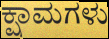
ಕ್ಷಾಮಗಳು